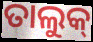
ତାଲୁକ୍